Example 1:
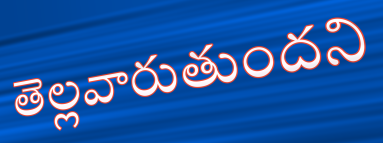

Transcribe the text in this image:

తెల్లవారుతుందని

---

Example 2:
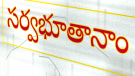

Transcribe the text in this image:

సర్వభూతానాం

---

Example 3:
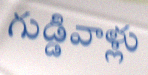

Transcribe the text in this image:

గుడ్డివాళ్లు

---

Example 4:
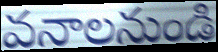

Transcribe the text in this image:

వనాలనుండి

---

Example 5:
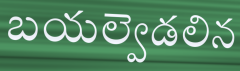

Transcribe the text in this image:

బయల్వెడలిన